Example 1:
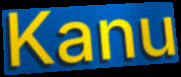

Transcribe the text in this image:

Kanu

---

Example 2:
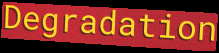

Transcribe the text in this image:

Degradation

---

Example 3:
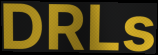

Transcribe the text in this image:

DRLs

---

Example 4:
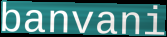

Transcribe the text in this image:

banvani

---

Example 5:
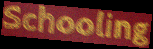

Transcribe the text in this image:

Schooling